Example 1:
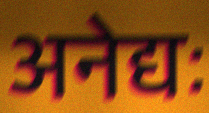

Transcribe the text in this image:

अनेद्यः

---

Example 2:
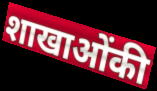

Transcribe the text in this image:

शाखाओंकी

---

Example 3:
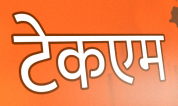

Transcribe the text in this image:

टेकएम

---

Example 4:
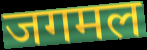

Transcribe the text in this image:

जगमल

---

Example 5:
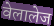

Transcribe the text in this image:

वेलालेज